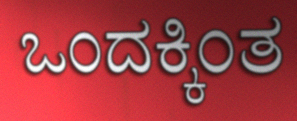
ಒಂದಕ್ಕಿಂತ